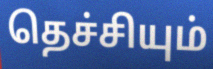
தெச்சியும்